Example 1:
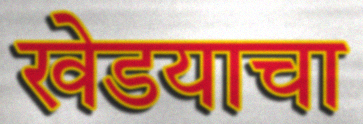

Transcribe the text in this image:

खेडयाचा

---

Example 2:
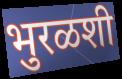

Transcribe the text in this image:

भुरळशी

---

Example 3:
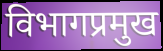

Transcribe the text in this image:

विभागप्रमुख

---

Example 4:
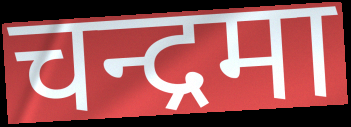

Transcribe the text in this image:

चन्द्रमा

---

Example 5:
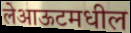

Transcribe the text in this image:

लेआऊटमधील